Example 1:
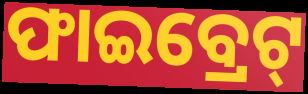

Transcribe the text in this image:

ଫାଇବ୍ରେଟ୍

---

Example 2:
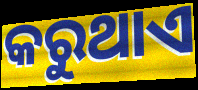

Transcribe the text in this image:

କରୁଥାଏ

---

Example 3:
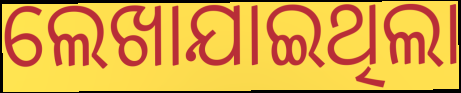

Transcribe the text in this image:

ଲେଖାଯାଇଥିଲା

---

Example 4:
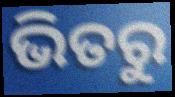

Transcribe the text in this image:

ଭିତରୁ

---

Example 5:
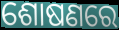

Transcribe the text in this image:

ଶୋଷଣରେ